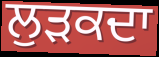
ਲੁੜਕਦਾ